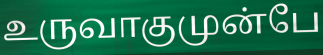
உருவாகுமுன்பே